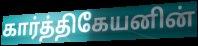
கார்த்திகேயனின்